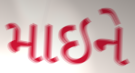
માઇને